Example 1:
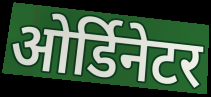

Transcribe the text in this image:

ओर्डिनेटर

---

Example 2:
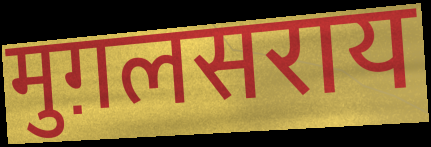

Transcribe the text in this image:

मुग़लसराय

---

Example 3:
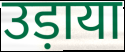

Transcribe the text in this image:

उड़ाया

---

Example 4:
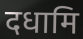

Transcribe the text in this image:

दधामि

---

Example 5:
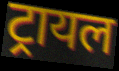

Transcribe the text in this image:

ट्रायल